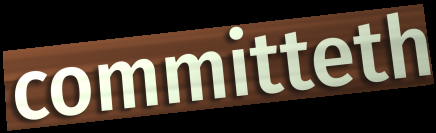
committeth